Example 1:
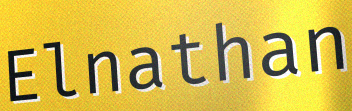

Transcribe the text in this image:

Elnathan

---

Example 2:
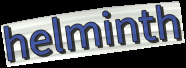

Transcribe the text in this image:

helminth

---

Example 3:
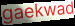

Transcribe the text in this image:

gaekwad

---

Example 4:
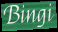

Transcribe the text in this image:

Bingi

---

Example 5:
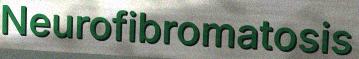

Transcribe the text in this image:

Neurofibromatosis